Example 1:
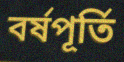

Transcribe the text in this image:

বর্ষপূর্তি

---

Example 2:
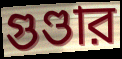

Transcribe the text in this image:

গুণ্ডার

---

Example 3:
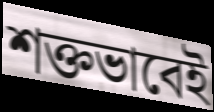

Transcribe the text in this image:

শক্তভাবেই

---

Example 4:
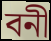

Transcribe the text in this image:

বনী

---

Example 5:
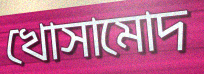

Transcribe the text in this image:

খোসামোদ